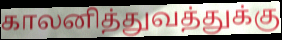
காலனித்துவத்துக்கு